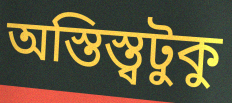
অস্তিস্ত্বটুকু